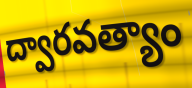
ద్వారవత్యాం